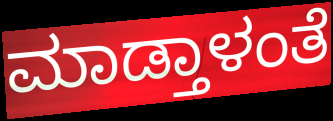
ಮಾಡ್ತಾಳಂತೆ